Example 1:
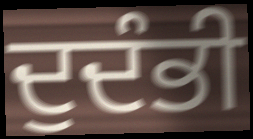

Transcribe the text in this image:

ਦੁਦੰਭੀ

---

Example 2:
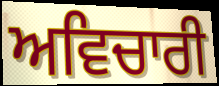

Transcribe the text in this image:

ਅਵਿਚਾਰੀ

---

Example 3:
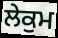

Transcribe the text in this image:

ਲੇਕੁਮ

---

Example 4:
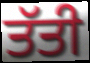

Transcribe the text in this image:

ਤੱਤੀ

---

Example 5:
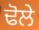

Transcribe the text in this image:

ਢੋਲੇ